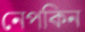
নেপকিন